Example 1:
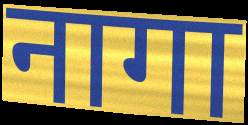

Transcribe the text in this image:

नागा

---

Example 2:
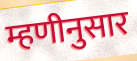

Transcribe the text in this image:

म्हणीनुसार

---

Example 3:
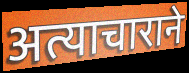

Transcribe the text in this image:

अत्याचाराने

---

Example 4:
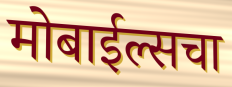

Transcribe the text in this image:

मोबाईल्सचा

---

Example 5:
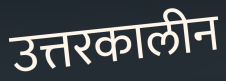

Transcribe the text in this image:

उत्तरकालीन